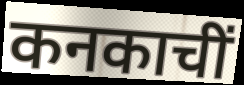
कनकाचीं